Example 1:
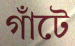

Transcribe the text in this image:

গাঁটে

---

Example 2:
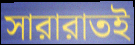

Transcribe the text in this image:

সারারাতই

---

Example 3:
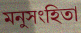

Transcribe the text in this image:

মনুসংহিতা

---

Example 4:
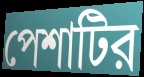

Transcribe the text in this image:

পেশাটির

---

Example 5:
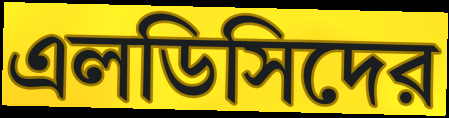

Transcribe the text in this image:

এলডিসিদের